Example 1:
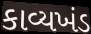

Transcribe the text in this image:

કાવ્યખંડ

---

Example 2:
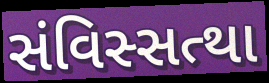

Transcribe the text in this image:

સંવિસ્સત્થા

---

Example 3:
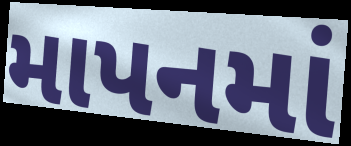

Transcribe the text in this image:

માપનમાં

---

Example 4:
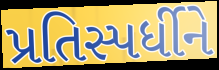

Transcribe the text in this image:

પ્રતિસ્પર્ધીને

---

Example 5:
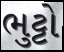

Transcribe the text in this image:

ભુટ્ટો